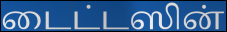
டைட்டஸின்